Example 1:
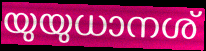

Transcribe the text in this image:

യുയുധാനശ്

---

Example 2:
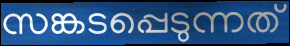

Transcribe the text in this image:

സങ്കടപ്പെടുന്നത്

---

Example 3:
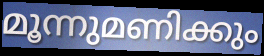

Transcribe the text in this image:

മൂന്നുമണിക്കും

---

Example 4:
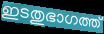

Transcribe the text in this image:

ഇടതുഭാഗത്ത്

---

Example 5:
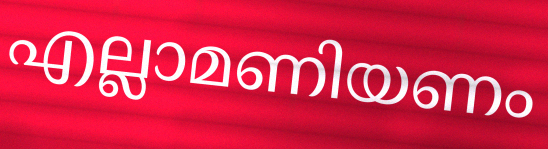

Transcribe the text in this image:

എല്ലാമണിയണം